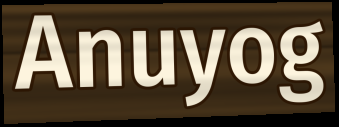
Anuyog